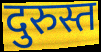
दुरुस्त